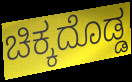
ಚಿಕ್ಕದೊಡ್ಡ